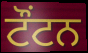
ਟੌਂਟਨ